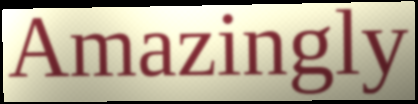
Amazingly